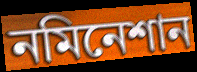
নমিনেশান